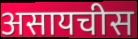
असायचीस